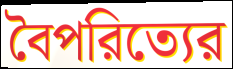
বৈপরিত্যের